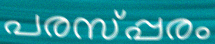
പരസ്പ്പരം